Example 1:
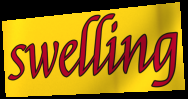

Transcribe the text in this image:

swelling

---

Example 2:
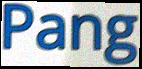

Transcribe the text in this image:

Pang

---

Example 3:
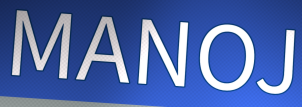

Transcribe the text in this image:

MANOJ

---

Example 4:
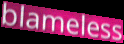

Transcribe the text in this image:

blameless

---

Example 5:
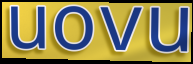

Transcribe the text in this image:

uovu